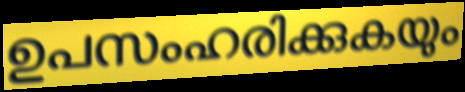
ഉപസംഹരിക്കുകയും